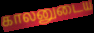
காலனுடைய